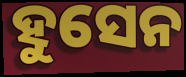
ହୁସେନ